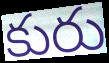
కురు